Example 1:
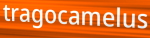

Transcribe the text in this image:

tragocamelus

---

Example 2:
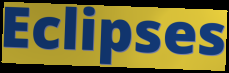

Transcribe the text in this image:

Eclipses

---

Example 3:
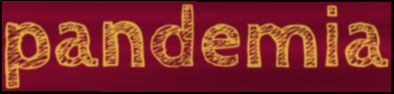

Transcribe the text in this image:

pandemia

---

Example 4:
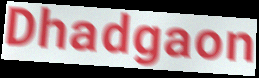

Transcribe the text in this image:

Dhadgaon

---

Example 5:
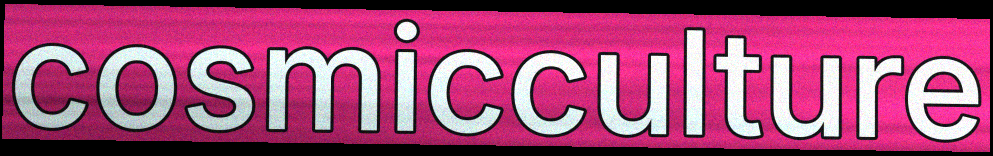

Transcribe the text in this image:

cosmicculture